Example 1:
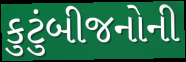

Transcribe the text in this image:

કુટુંબીજનોની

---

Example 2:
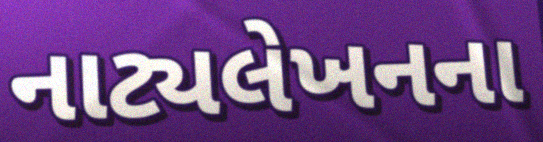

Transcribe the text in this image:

નાટ્યલેખનના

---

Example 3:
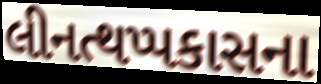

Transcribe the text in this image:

લીનત્થપ્પકાસના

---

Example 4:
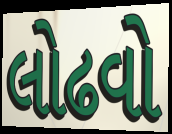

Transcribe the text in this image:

લોઢવો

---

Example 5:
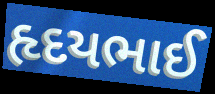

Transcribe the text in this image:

હૃદયભાઈ